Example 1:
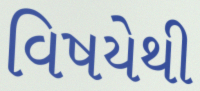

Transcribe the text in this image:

વિષયેથી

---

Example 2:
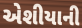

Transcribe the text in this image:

એશીયાની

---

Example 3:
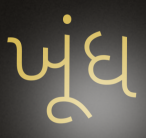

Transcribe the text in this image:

ખૂંધ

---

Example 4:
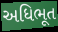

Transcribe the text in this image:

અધિભૂત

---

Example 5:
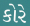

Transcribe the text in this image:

કોરે